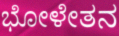
ಭೋಳೇತನ